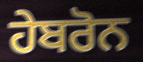
ਹੇਬਰੋਨ